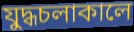
যুদ্ধচলাকালে